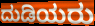
ದುಡಿಯರು